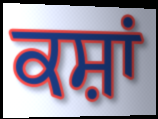
ਕਸ਼ਾਂ